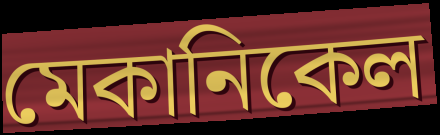
মেকানিকেল